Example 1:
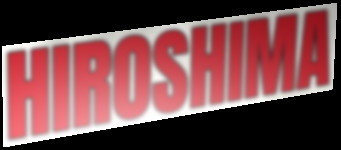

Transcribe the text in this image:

HIROSHIMA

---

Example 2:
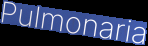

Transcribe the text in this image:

Pulmonaria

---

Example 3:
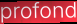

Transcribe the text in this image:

profond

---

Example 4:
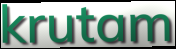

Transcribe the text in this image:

krutam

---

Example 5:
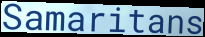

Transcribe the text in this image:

Samaritans